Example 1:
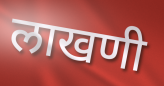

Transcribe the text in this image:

लाखणी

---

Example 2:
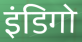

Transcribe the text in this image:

इंडिगो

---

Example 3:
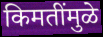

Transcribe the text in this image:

किमतींमुळे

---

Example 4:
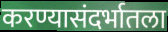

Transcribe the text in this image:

करण्यासंदर्भातला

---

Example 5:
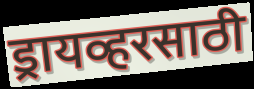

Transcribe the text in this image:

ड्रायव्हरसाठी